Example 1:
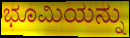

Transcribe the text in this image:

ಭೂಮಿಯನ್ನು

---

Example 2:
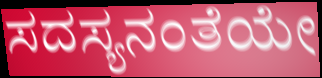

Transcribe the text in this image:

ಸದಸ್ಯನಂತೆಯೇ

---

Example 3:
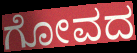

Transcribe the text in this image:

ಗೋವದ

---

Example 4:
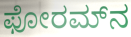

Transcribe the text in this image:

ಫೋರಮ್‌ನ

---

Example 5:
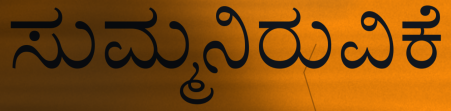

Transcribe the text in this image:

ಸುಮ್ಮನಿರುವಿಕೆ